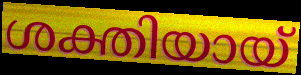
ശക്തിയായ്